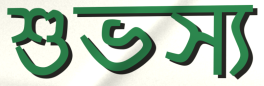
শুভস্য